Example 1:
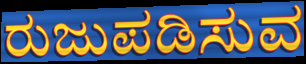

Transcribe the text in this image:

ರುಜುಪಡಿಸುವ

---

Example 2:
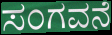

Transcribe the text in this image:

ಸಂಗವನೆ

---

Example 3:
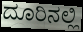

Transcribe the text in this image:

ದೂರಿನಲ್ಲಿ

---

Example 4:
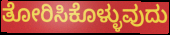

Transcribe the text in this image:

ತೋರಿಸಿಕೊಳ್ಳುವುದು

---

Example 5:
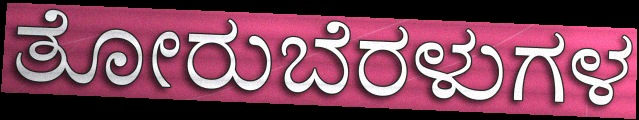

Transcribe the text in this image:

ತೋರುಬೆರಳುಗಳ